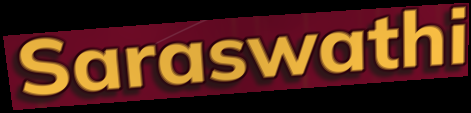
Saraswathi